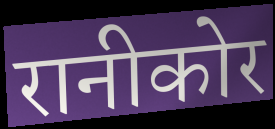
रानीकोर